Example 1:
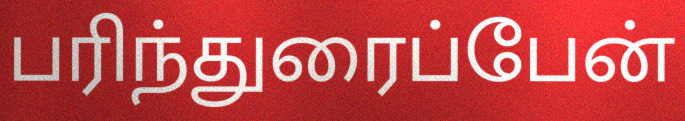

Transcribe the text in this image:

பரிந்துரைப்பேன்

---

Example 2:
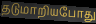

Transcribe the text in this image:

தடுமாறியபோது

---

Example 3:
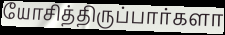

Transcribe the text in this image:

யோசித்திருப்பார்களா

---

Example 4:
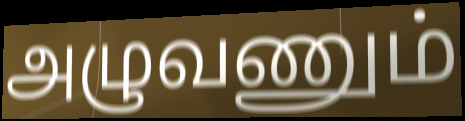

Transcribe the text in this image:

அழுவணும்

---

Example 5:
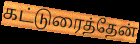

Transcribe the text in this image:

கட்டுரைத்தேன்